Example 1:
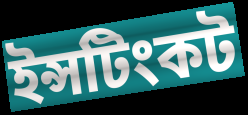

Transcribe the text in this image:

ইন্সটিংকট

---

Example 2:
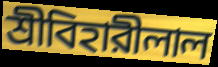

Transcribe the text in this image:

শ্রীবিহারীলাল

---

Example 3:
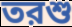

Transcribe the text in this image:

তরশু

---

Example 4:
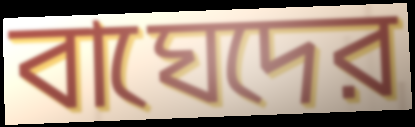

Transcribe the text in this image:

বাঘেদের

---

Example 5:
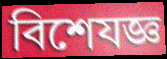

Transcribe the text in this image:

বিশেযজ্ঞ